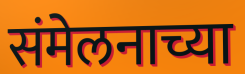
संमेलनाच्या